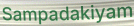
Sampadakiyam